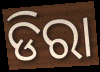
ଡିରା